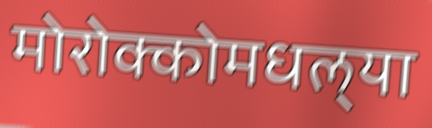
मोरोक्कोमधल्या